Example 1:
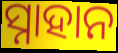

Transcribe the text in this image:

ସ୍ନାହାନ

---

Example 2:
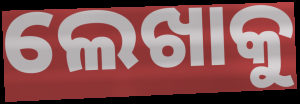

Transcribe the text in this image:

ଲେଖାକୁ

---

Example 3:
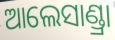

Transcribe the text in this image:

ଆଲେସାଣ୍ଡ୍ରା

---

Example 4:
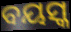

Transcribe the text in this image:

ବୟସ୍କ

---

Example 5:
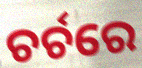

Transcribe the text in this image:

ଚର୍ଚରେ